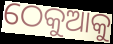
ଠେକୁଆକୁ